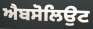
ਐਬਸੋਲਿਉਟ